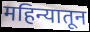
महिन्यातून